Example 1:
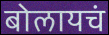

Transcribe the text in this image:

बोलायचं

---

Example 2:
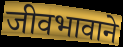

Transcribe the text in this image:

जीवभावाने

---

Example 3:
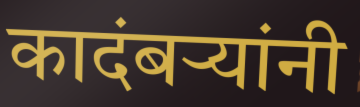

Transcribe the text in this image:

कादंबऱ्यांनी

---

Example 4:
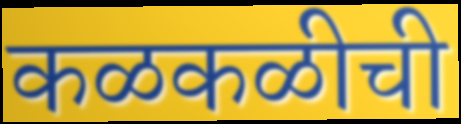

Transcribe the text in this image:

कळकळीची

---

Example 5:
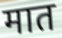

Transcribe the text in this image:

मात